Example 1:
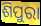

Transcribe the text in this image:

ଶିପୁରା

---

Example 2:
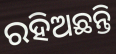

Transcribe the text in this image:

ରହିଅଛନ୍ତି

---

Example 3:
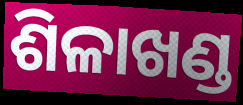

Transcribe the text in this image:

ଶିଳାଖଣ୍ଡ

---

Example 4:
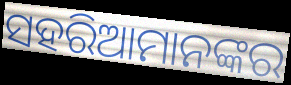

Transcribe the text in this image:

ସହରିଆମାନଙ୍କର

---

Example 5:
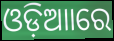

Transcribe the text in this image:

ଓଡ଼ିଆାରେ